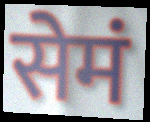
सेमं